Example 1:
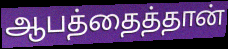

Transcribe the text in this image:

ஆபத்தைத்தான்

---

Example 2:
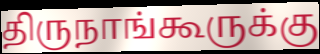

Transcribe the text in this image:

திருநாங்கூருக்கு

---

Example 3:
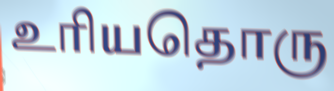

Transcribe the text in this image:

உரியதொரு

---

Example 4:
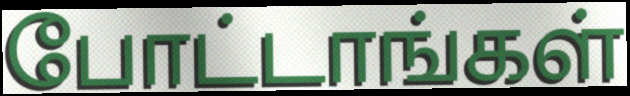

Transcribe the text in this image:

போட்டாங்கள்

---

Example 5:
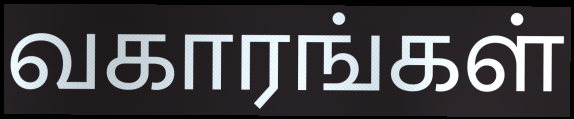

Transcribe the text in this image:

வகாரங்கள்